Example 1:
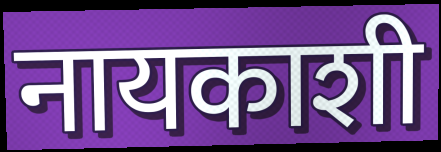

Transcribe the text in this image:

नायकाशी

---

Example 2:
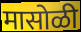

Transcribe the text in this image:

मासोळी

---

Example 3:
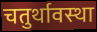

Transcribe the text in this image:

चतुर्थावस्था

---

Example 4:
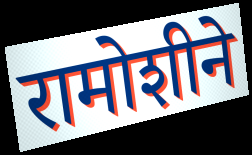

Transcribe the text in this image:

रामोशीने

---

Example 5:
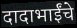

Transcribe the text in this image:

दादाभाईंचे